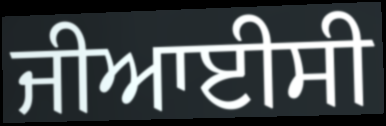
ਜੀਆਈਸੀ